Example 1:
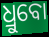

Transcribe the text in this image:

ଧ୍ରୁବୋ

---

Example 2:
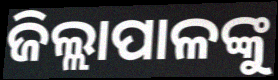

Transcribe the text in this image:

ଜିଲ୍ଲାପାଳଙ୍କୁ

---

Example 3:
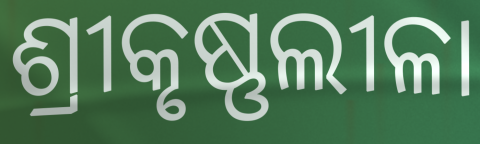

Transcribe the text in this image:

ଶ୍ରୀକୃଷ୍ଣଲୀଳା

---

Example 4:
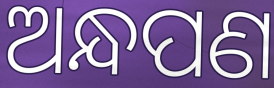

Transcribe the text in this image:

ଅନ୍ଧପଣ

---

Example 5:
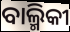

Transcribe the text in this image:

ବାଲ୍ମିକୀ